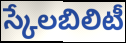
స్కేలబిలిటీ